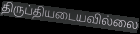
திருப்தியடையவில்லை